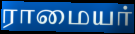
ராமையர்